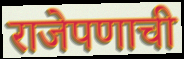
राजेपणाची